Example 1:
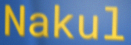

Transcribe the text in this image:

Nakul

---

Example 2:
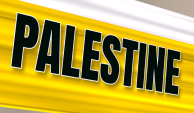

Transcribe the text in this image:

PALESTINE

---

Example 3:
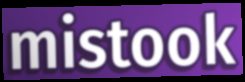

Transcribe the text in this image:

mistook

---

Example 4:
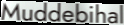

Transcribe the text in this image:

Muddebihal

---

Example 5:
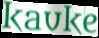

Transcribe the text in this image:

kauke